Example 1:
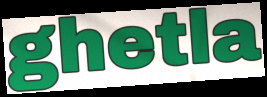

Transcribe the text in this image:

ghetla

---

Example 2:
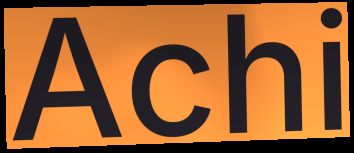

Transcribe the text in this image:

Achi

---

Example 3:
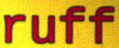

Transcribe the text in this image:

ruff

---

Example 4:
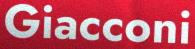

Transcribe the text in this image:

Giacconi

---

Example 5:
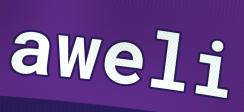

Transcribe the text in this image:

aweli